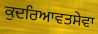
ਕੁਦਰਿਆਵਤਸੇਵਾ